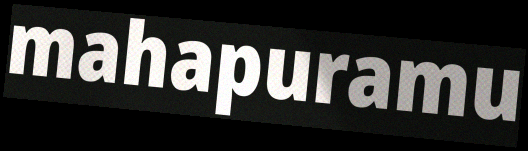
mahapuramu